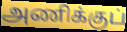
அணிக்குப்